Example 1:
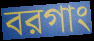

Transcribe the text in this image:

বরগাং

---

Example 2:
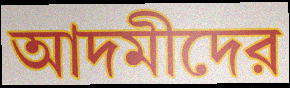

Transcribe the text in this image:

আদমীদের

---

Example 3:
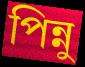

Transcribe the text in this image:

পিন্নু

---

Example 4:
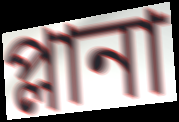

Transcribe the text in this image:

প্লানা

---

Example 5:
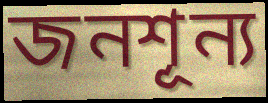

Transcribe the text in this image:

জনশূন্য